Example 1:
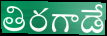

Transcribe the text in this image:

తిరగాడే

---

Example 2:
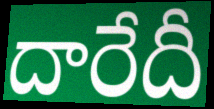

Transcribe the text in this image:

దారేదీ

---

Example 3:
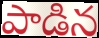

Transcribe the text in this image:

పాడిన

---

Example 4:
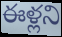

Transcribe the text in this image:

ఈళ్లని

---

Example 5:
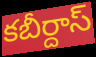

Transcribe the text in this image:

కబీర్దాస్